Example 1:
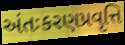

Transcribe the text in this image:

અંતઃકરણપ્રવૃત્તિ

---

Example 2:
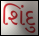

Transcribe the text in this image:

શિંદુ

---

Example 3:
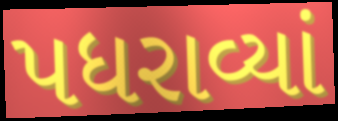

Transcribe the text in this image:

પધરાવ્યાં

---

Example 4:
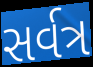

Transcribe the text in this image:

સર્વત્ર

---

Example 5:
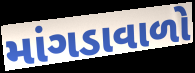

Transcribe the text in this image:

માંગડાવાળો